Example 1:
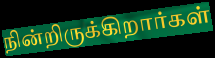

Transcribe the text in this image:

நின்றிருக்கிறார்கள்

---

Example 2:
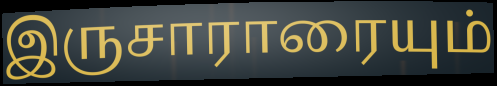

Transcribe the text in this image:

இருசாராரையும்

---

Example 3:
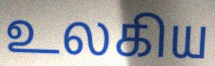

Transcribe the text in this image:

உலகிய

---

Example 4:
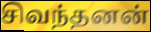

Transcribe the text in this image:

சிவந்தனன்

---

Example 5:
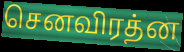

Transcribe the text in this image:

செனவிரத்ன